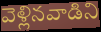
వెళ్లినవాడిని